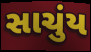
સાચુંય